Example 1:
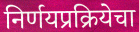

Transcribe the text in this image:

निर्णयप्रक्रियेचा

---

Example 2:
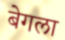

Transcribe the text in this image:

बेगला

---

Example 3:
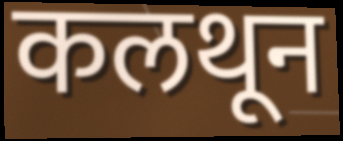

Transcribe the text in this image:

कलथून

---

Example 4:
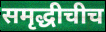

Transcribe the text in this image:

समृद्धीचीच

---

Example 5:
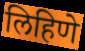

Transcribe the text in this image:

लिहिणे